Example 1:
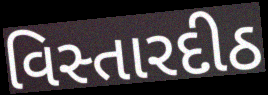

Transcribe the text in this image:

વિસ્તારદીઠ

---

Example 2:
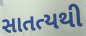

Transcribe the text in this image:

સાતત્યથી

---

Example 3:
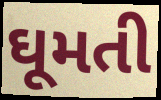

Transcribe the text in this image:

ઘૂમતી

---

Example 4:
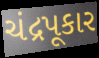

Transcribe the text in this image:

ચંદ્રપૂકાર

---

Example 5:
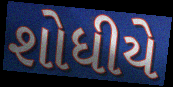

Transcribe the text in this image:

શોધીયે